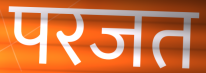
परजत